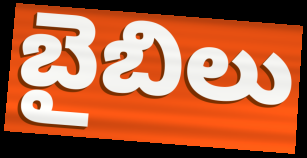
బైబిలు